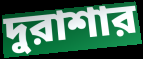
দুরাশার